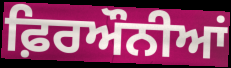
ਫ਼ਿਰਔਨੀਆਂ